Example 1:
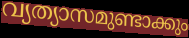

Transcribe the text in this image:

വ്യത്യാസമുണ്ടാക്കും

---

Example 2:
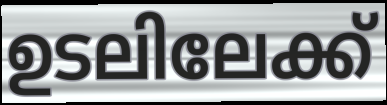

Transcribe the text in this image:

ഉടലിലേക്ക്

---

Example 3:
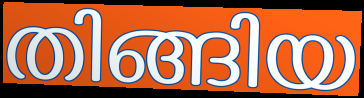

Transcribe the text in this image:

തിങ്ങിയ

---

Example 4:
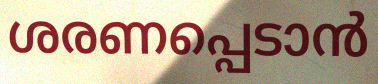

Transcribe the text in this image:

ശരണപ്പെടാൻ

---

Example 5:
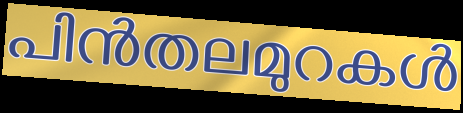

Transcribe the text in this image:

പിൻതലമുറകൾ